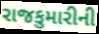
રાજકુમારીની